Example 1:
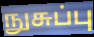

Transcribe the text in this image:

நுசுப்பு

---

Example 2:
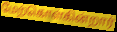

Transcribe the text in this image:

மேற்கொள்கின்றார்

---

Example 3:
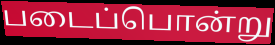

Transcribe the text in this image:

படைப்பொன்று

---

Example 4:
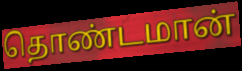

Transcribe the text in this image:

தொண்டமான்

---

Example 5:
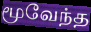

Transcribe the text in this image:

மூவேந்த